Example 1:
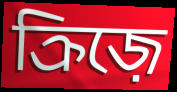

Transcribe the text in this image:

ক্রিজ়ে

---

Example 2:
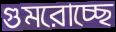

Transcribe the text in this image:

গুমরোচ্ছে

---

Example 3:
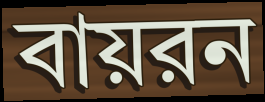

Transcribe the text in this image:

বায়রন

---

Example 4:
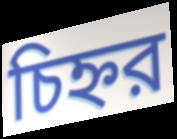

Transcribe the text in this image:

চিহ্নর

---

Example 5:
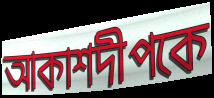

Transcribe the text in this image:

আকাশদীপকে